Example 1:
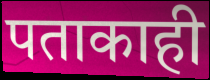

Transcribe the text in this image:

पताकाही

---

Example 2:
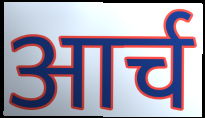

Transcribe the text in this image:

आर्च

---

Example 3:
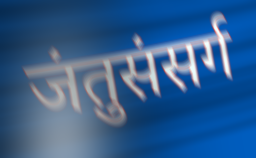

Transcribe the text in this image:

जंतुसंसर्ग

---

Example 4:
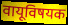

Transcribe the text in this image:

वायूविषयक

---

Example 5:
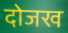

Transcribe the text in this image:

दोजख